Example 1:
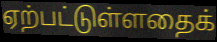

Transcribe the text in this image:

ஏற்பட்டுள்ளதைக்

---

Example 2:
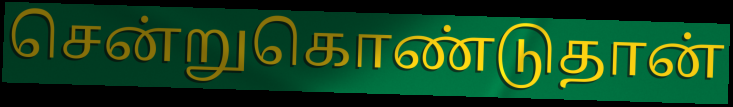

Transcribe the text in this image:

சென்றுகொண்டுதான்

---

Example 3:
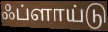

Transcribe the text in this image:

ஃப்ளாய்டு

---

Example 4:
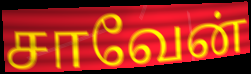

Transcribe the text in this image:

சாவேன்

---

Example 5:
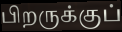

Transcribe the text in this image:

பிறருக்குப்